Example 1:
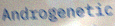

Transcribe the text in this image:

Androgenetic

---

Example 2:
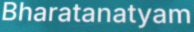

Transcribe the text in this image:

Bharatanatyam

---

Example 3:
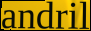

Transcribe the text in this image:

andril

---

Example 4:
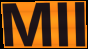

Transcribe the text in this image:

MII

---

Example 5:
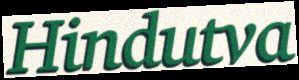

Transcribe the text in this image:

Hindutva